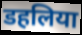
डहलिया